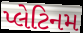
પ્લેટિનમ